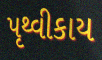
પૃથ્વીકાય